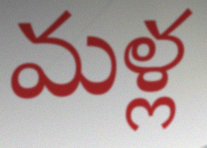
మళ్ల